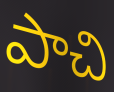
పాచి